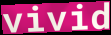
vivid